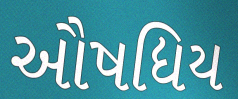
ઔષદ્યિય